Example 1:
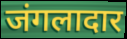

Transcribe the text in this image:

जंगलादार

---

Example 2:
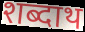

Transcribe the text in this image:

शब्दाथ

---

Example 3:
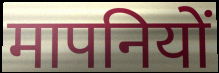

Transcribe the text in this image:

मापनियों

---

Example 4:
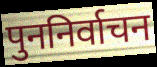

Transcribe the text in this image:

पुननिर्वाचन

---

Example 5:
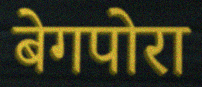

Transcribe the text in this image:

बेगपोरा